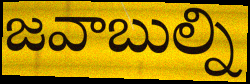
జవాబుల్ని